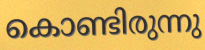
കൊണ്ടിരുന്നു